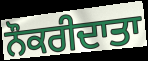
ਨੌਕਰੀਦਾਤਾ